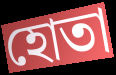
হোতা